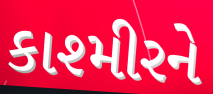
કાશ્મીરને